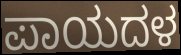
ಪಾಯದಳ